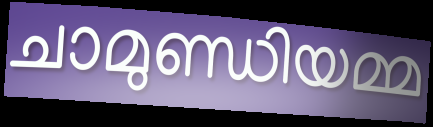
ചാമുണ്ഡിയമ്മ